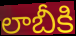
లాబీకి